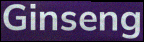
Ginseng